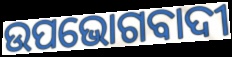
ଉପଭୋଗବାଦୀ